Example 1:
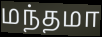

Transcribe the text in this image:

மந்தமா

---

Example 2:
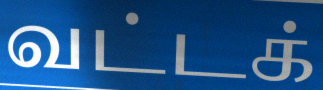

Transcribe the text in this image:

வட்டக்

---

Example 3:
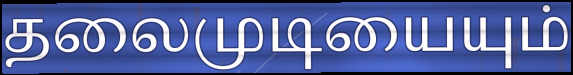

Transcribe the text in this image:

தலைமுடியையும்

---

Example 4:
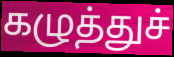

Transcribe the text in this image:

கழுத்துச்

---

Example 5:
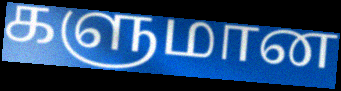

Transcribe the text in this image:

களுமான